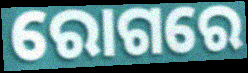
ରୋଗରେ